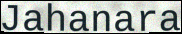
Jahanara